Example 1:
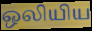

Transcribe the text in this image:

ஒலியிய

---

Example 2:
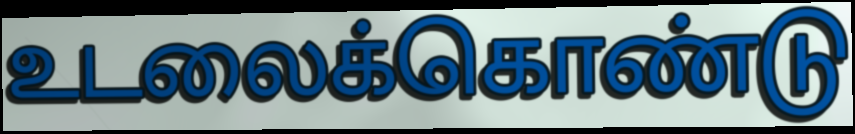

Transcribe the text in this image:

உடலைக்கொண்டு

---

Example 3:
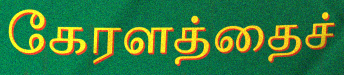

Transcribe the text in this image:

கேரளத்தைச்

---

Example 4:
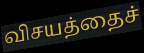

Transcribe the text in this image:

விசயத்தைச்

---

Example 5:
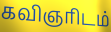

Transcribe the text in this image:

கவிஞரிடம்